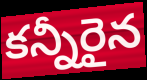
కన్నీరైన